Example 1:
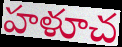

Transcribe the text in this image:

హళూచ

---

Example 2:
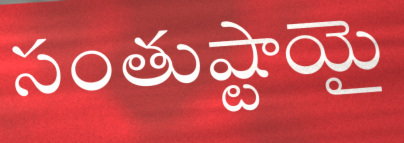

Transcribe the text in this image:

సంతుష్టాయై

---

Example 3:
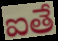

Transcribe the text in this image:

ఐతే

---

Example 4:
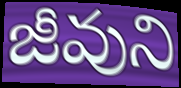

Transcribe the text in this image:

జీవుని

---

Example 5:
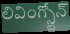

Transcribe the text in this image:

లివింగ్స్టోన్